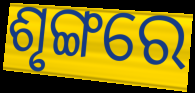
ଶୃଙ୍ଗରେ